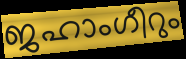
ജഹാംഗീറും